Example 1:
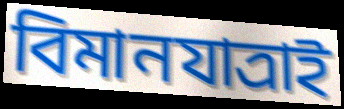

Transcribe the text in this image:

বিমানযাত্রাই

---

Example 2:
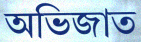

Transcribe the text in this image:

অভিজাত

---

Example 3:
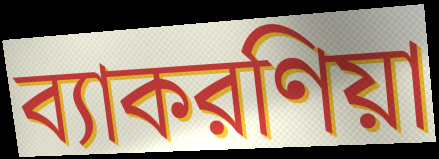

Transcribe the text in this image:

ব্যাকরণিয়া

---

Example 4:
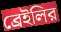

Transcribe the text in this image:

ব্রেইলির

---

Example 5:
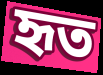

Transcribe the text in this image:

হৃত